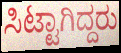
ಸಿಟ್ಟಾಗಿದ್ದರು